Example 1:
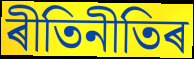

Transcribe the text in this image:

ৰীতিনীতিৰ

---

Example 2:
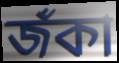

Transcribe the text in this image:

জঁকা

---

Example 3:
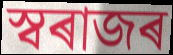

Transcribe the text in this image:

স্বৰাজৰ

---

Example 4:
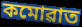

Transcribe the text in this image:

কমোৱাত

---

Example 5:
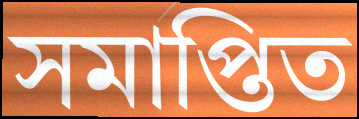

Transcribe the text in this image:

সমাপ্তিত